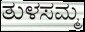
ತುಳಸಮ್ಮ